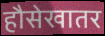
हौसेखातर